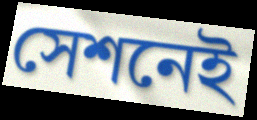
সেশনেই